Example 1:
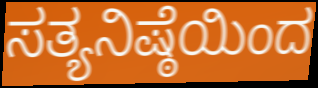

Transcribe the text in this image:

ಸತ್ಯನಿಷ್ಠೆಯಿಂದ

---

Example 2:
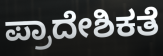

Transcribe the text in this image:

ಪ್ರಾದೇಶಿಕತೆ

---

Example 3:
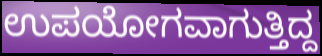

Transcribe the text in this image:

ಉಪಯೋಗವಾಗುತ್ತಿದ್ದ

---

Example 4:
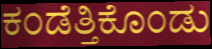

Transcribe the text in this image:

ಕಂಡೆತ್ತಿಕೊಂಡು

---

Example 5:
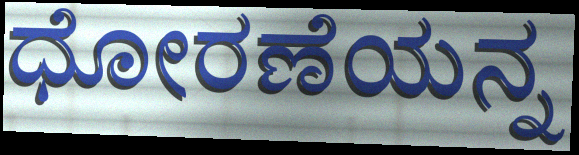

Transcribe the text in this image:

ಧೋರಣೆಯನ್ನ